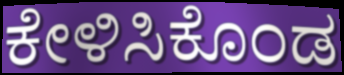
ಕೇಳಿಸಿಕೊಂಡ